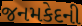
જનમકેદની